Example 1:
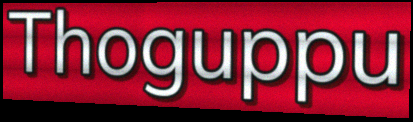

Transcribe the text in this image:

Thoguppu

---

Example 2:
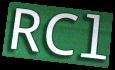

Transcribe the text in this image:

RCl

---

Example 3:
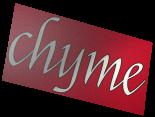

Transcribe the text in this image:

chyme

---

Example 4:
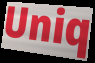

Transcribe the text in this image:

Uniq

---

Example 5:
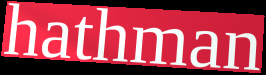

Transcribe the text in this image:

hathman